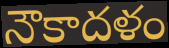
నౌకాదళం